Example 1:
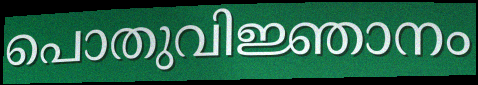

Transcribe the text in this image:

പൊതുവിജ്ഞാനം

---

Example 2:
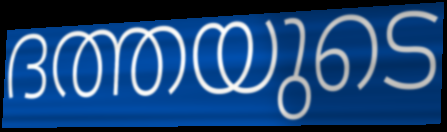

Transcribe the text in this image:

ദത്തയുടെ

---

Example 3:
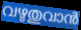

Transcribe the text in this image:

വഴുതുവാൻ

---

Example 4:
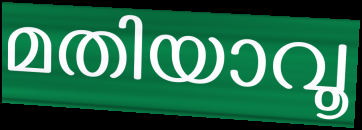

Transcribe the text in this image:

മതിയാവൂ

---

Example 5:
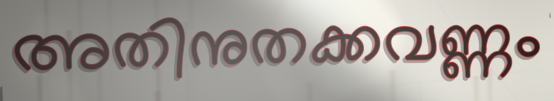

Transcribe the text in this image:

അതിനുതക്കവണ്ണം